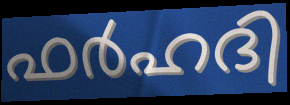
ഫർഹദി